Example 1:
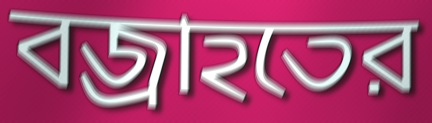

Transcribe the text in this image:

বজ্রাহতের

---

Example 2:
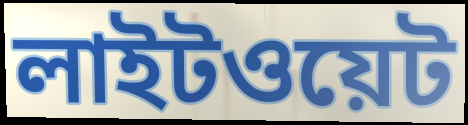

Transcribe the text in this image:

লাইটওয়েট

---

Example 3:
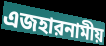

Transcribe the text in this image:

এজহারনামীয়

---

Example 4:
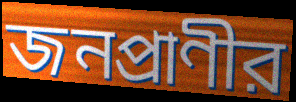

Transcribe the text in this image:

জনপ্রাণীর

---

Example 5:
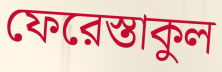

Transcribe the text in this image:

ফেরেস্তাকুল